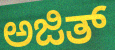
ಅಜಿತ್